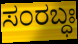
ಸಂರಬ್ಧಃ